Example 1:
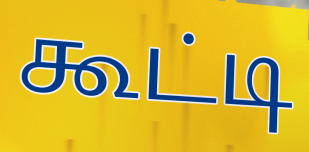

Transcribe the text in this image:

கூட்டி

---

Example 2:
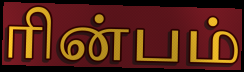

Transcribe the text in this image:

ரின்பம்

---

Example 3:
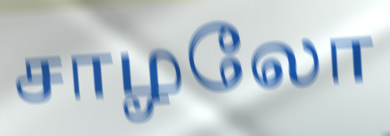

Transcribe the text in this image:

சாழலோ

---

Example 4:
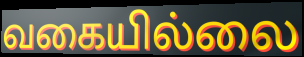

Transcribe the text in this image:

வகையில்லை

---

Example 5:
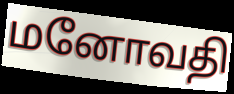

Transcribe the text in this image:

மனோவதி